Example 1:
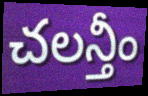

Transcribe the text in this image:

చలన్తీం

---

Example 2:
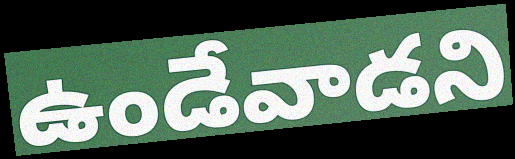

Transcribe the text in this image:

ఉండేవాడని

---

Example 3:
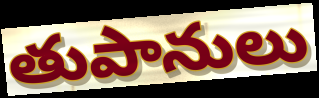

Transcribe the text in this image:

తుపానులు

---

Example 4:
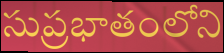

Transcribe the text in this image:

సుప్రభాతంలోని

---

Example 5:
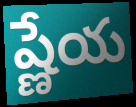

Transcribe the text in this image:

ష్ణేయ